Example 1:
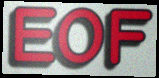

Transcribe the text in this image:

EOF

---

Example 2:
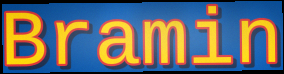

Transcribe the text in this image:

Bramin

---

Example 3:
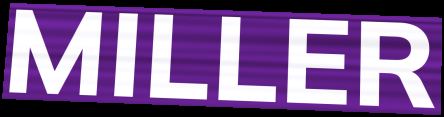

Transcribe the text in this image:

MILLER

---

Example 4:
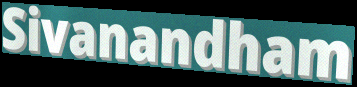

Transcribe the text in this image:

Sivanandham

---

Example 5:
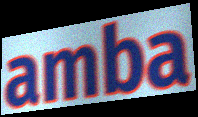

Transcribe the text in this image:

amba